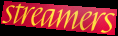
streamers